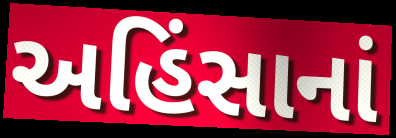
અહિંસાનાં